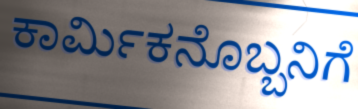
ಕಾರ್ಮಿಕನೊಬ್ಬನಿಗೆ